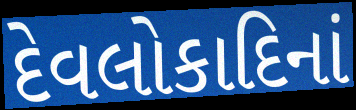
દેવલોકાદિનાં